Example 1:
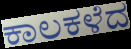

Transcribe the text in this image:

ಕಾಲಕಳೆದ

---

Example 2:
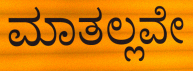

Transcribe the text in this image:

ಮಾತಲ್ಲವೇ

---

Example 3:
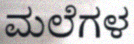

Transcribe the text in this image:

ಮಲೆಗಳ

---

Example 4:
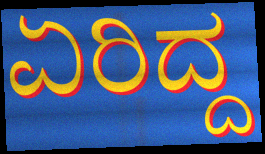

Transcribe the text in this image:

ಏರಿದ್ದ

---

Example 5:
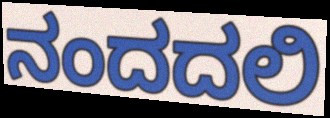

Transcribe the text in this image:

ನಂದದಲಿ